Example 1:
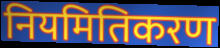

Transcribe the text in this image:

नियमितिकरण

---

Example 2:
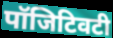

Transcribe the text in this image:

पॉजिटिवटी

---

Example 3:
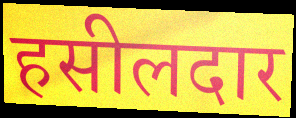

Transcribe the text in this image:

हसीलदार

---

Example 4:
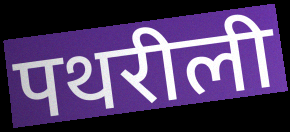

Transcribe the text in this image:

पथरीली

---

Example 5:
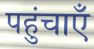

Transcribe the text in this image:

पहुंचाएँ